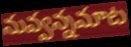
నువ్వన్నమాట